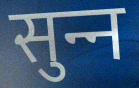
सुन्‍न